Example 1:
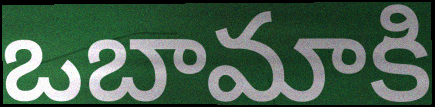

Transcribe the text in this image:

ఒబామాకి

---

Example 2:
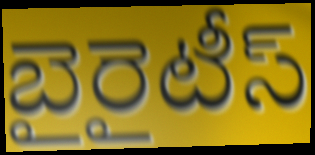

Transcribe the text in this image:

బైరైటీస్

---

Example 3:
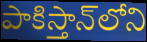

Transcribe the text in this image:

పాకిస్తాన్‌లోని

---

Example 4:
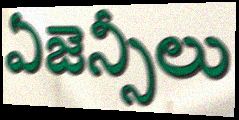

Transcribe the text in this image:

ఏజెన్సీలు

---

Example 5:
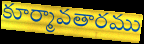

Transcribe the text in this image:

కూర్మావతారము